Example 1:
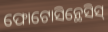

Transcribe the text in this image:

ଫୋଟୋସିନ୍ଥେସିସ୍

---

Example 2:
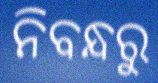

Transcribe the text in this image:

ନିବନ୍ଧରୁ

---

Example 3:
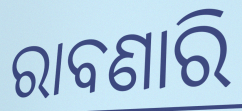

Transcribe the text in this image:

ରାବଣାରି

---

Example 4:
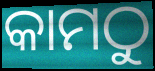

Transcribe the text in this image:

କାମଠୁ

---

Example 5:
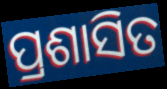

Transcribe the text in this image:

ପ୍ରଶାସିତ